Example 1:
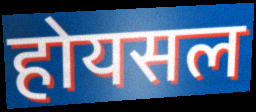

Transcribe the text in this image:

होयसल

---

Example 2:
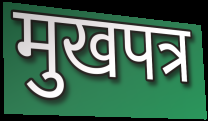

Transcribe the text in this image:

मुखपत्र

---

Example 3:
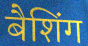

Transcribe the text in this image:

बैशिंग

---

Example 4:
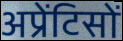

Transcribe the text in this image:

अप्रेंटिसों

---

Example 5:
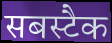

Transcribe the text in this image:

सबस्टैक